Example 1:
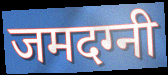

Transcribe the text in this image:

जमदग्नी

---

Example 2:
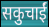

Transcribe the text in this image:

सकुचाईं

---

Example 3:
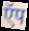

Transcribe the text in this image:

ऍप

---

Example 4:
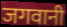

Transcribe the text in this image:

जगवानी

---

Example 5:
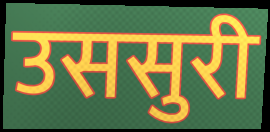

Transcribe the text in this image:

उससुरी